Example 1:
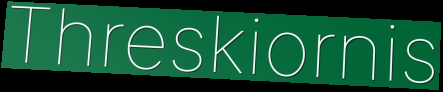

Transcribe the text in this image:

Threskiornis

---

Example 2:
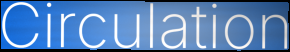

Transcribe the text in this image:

Circulation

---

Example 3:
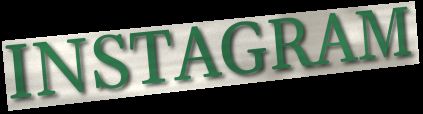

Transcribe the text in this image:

INSTAGRAM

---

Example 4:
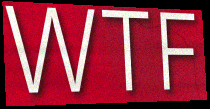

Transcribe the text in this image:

WTF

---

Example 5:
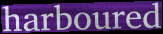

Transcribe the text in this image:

harboured